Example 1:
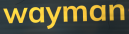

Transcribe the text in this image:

wayman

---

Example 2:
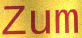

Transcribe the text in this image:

Zum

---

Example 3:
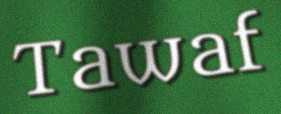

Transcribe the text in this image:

Tawaf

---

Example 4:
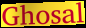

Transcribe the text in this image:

Ghosal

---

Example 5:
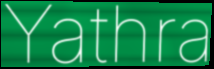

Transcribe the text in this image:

Yathra